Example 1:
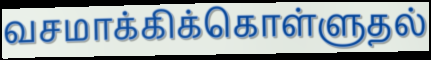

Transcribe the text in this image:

வசமாக்கிக்கொள்ளுதல்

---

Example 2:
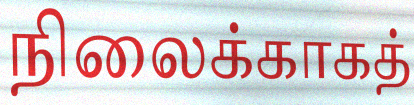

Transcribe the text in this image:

நிலைக்காகத்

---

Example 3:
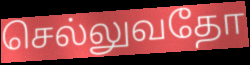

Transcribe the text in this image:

செல்லுவதோ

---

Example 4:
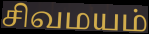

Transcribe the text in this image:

சிவமயம்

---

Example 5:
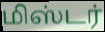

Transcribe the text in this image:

மிஸ்டர்